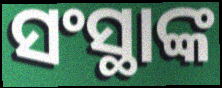
ସଂସ୍ଥାଙ୍କ